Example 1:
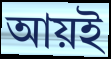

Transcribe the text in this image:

আয়ই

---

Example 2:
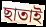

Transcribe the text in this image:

ছাতাই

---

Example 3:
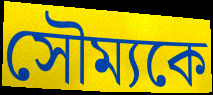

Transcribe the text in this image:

সৌম্যকে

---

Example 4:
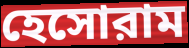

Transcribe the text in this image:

হেসোরাম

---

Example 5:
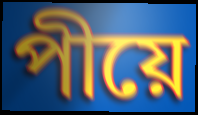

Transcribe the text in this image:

পীয়ে